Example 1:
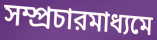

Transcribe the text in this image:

সম্প্রচারমাধ্যমে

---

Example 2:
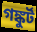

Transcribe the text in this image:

গঙ্কুর্ট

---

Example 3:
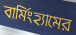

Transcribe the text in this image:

বার্মিংহ্যামের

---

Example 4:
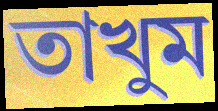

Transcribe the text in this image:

তাখুম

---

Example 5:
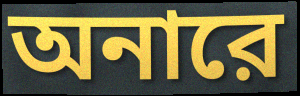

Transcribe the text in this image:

অনারে